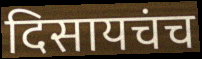
दिसायचंच